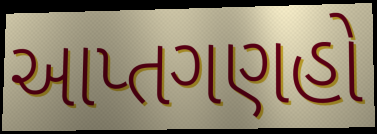
આપ્તગણહો